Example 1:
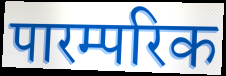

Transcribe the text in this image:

पारम्परिक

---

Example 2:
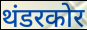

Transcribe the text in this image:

थंडरकोर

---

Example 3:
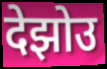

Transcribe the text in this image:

देझोउ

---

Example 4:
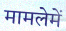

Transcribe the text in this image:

मामलेमें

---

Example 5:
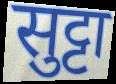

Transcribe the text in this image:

सुट्टा